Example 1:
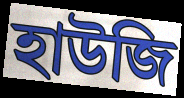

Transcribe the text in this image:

হাউজি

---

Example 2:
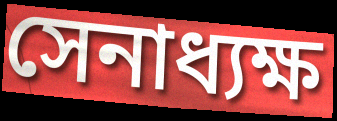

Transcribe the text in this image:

সেনাধ্যক্ষ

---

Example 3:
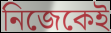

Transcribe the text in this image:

নিজেকেই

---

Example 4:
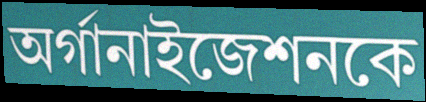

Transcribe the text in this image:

অর্গানাইজেশনকে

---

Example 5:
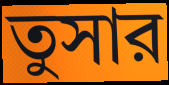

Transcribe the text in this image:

তুসার